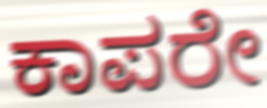
ಕಾಪರೇ